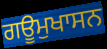
ਗਊਮੁਖਾਸਨ